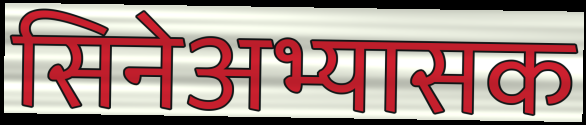
सिनेअभ्यासक